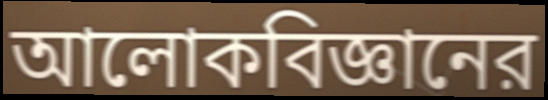
আলোকবিজ্ঞানের